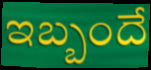
ఇబ్బందే